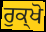
ਰੁਕ੍ਖੋ